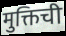
मुक्तिची